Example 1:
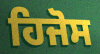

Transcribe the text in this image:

ਹਿਜੋਸ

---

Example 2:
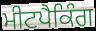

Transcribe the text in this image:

ਮੀਟਪੈਕਿੰਗ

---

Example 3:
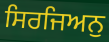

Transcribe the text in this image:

ਸਿਰਜਿਅਨੁ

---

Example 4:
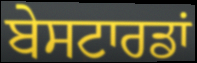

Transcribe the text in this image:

ਬੇਸਟਾਰਡਾਂ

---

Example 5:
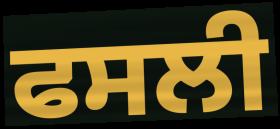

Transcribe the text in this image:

ਫਸਲੀ